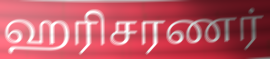
ஹரிசரணர்